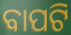
ବାପଟି